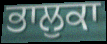
ਭਾਲੁਕਾ